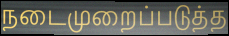
நடைமுறைப்படுத்த